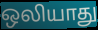
ஒலியாது